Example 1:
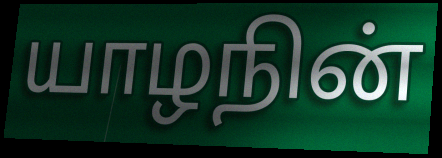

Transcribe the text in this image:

யாழநின்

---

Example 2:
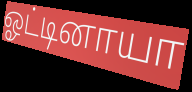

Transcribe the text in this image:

ஓட்டினாயா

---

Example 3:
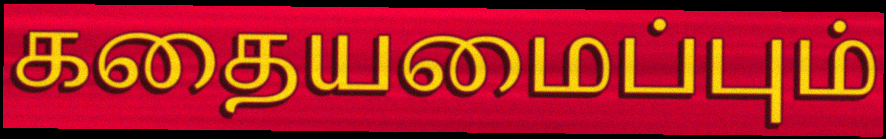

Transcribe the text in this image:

கதையமைப்பும்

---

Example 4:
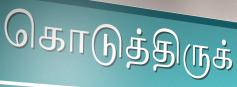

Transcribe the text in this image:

கொடுத்திருக்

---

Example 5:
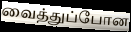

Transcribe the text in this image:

வைத்துப்போன